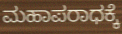
ಮಹಾಪರಾಧಕ್ಕೆ